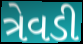
ત્રેવડી